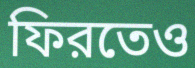
ফিরতেও